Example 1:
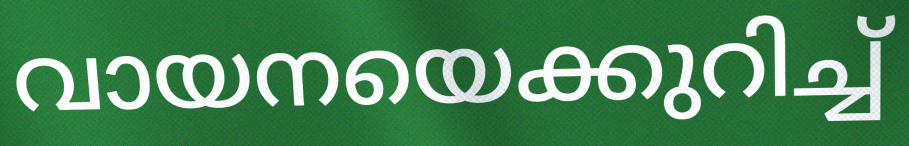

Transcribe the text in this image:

വായനയെക്കുറിച്ച്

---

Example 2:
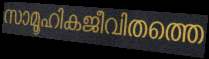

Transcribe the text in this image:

സാമൂഹികജീവിതത്തെ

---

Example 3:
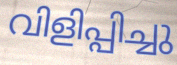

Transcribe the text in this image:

വിളിപ്പിച്ചു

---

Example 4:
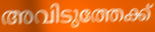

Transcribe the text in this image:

അവിടുത്തേക്ക്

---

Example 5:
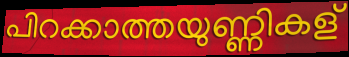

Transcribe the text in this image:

പിറക്കാത്തയുണ്ണികള്